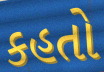
કહતો